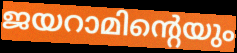
ജയറാമിന്റെയും